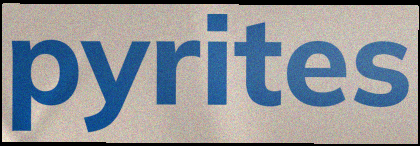
pyrites